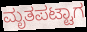
ಮೃತಪಟ್ಟಾಗ